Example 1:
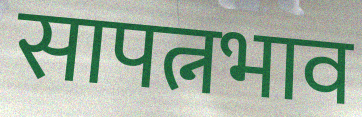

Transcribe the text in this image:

सापत्नभाव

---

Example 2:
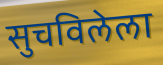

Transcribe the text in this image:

सुचविलेला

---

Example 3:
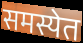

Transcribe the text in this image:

समस्येत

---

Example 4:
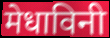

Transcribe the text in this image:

मेधाविनी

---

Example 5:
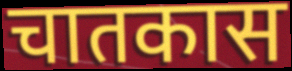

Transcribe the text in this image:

चातकास